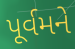
પૂર્વમને